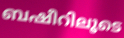
ബഷീറിലൂടെ